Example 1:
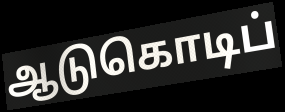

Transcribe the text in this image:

ஆடுகொடிப்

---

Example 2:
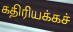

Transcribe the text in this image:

கதிரியக்கச்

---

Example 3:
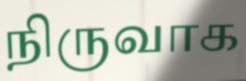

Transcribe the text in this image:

நிருவாக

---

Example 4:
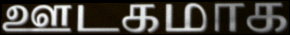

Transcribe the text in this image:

ஊடகமாக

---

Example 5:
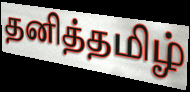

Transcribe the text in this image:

தனித்தமிழ்